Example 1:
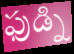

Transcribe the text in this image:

ఫుడ్ని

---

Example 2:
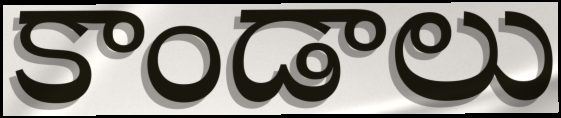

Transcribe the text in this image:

కాండాలు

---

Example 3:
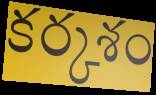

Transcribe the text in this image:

కర్కశం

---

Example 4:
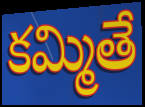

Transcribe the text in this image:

కమ్మితే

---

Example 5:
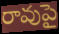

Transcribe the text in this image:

రావుపై